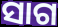
ସାଗ